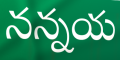
నన్నయ